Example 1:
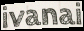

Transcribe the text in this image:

ivanai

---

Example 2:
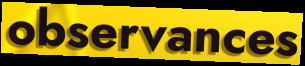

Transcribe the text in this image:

observances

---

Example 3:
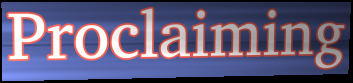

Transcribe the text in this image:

Proclaiming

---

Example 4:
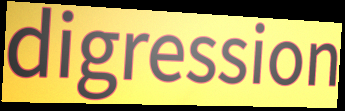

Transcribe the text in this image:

digression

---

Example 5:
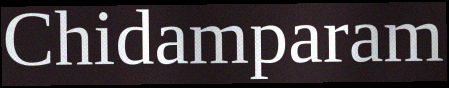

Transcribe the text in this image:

Chidamparam